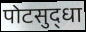
पोटसुद्धा